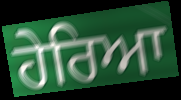
ਹੇਰਿਆ